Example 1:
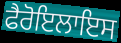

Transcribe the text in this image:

ਫੈਰੋਇਲਾਇਸ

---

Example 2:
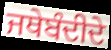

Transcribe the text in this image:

ਜਥੇਬੰਦੀਦੇ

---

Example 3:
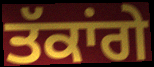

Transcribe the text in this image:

ਤੱਕਾਂਗੇ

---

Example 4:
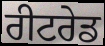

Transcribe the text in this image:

ਰੀਟਰੇਡ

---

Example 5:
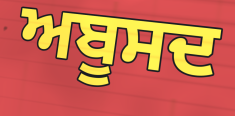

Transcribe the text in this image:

ਅਬੂਸਦ